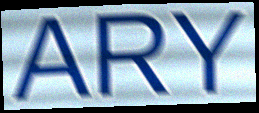
ARY